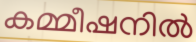
കമ്മീഷനിൽ